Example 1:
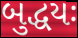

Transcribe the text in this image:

બુદ્ધયઃ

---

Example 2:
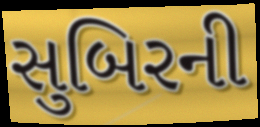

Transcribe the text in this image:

સુબિરની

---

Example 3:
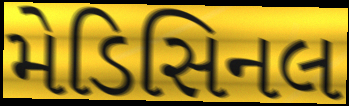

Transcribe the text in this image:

મેડિસિનલ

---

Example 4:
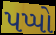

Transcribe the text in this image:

પપ્પો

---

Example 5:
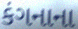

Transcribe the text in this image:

કંગનાના